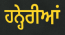
ਹਨ੍ਹੇਰੀਆਂ